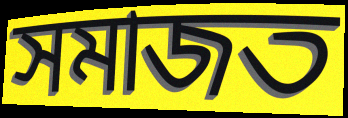
সমাজত